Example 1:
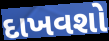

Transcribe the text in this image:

દાખવશો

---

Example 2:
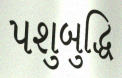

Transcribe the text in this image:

પશુબુદ્ધિ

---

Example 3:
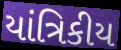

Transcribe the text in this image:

યાંત્રિકીય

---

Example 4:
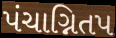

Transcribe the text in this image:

પંચાગ્નિતપ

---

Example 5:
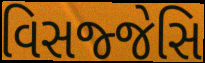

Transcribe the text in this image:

વિસજ્જેસિ